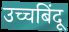
उच्चबिंदू